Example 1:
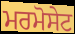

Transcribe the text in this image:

ਮਰਮੋਸੇਟ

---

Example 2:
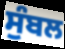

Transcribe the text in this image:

ਸੁੰਬਲ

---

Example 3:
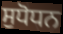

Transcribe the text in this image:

ਸੁਧੋਧਨ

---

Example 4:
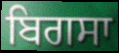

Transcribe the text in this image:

ਬਿਗਸਾ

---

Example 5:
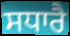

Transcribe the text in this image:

ਸਧਾਰੈ